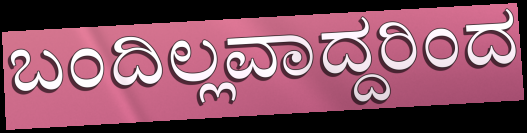
ಬಂದಿಲ್ಲವಾದ್ದರಿಂದ